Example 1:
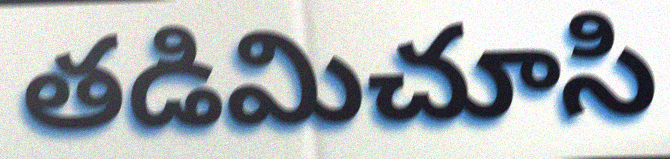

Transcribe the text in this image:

తడిమిచూసి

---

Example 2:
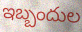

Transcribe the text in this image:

ఇబ్బందుల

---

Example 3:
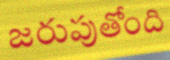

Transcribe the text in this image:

జరుపుతోంది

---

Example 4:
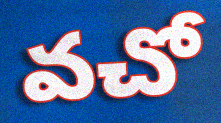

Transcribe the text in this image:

వచో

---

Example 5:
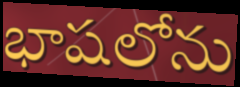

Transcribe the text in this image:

భాషలోను